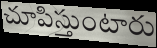
చూపిస్తుంటారు